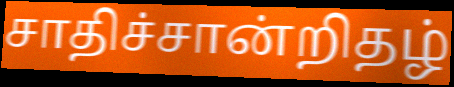
சாதிச்சான்றிதழ்